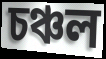
চঞ্চল